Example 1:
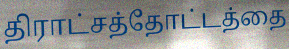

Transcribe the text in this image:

திராட்சத்தோட்டத்தை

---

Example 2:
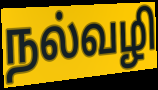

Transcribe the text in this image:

நல்வழி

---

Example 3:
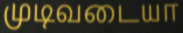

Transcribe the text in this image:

முடிவடையா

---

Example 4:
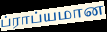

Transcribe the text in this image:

ப்ராப்யமான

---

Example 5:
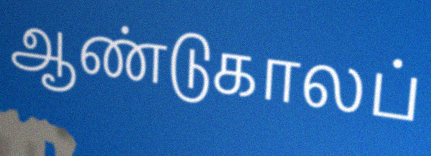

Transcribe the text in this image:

ஆண்டுகாலப்